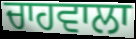
ਚਾਹਵਾਲਾ